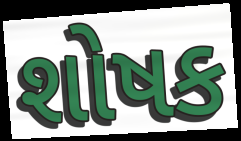
શોષક